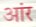
आंर